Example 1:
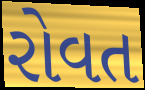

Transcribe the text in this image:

રોવત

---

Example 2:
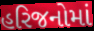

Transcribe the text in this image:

હરિજનોમાં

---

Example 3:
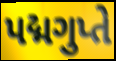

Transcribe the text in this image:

પદ્મગુપ્તે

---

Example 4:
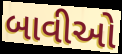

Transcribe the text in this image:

બાવીઓ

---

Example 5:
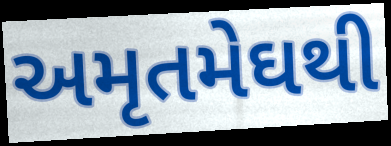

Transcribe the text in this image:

અમૃતમેઘથી